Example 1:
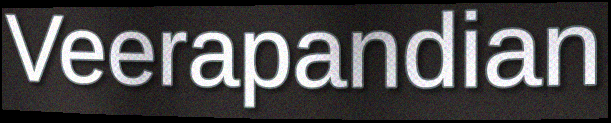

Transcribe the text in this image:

Veerapandian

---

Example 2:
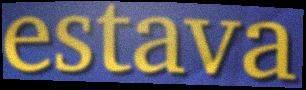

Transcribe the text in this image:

estava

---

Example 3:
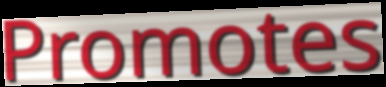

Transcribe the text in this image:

Promotes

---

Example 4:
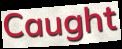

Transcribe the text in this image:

Caught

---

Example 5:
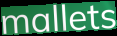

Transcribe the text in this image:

mallets